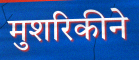
मुशरिकीने